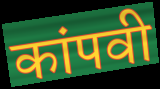
कांपवी